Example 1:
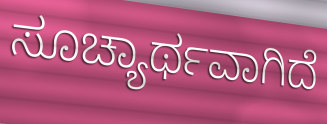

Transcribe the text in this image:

ಸೂಚ್ಯಾರ್ಥವಾಗಿದೆ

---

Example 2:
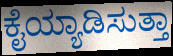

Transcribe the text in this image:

ಕೈಯ್ಯಾಡಿಸುತ್ತಾ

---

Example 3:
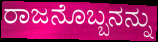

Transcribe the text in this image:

ರಾಜನೊಬ್ಬನನ್ನು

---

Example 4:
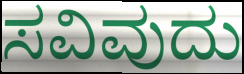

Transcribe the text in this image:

ಸವಿವುದು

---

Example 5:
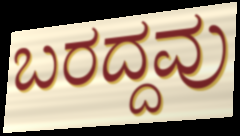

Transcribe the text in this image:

ಬರದ್ದವು